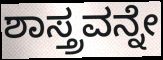
ಶಾಸ್ತ್ರವನ್ನೇ